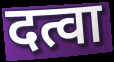
दत्वा